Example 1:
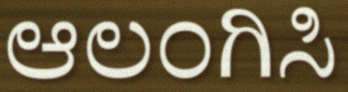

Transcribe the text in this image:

ಆಲಂಗಿಸಿ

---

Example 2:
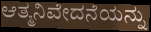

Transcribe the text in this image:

ಆತ್ಮನಿವೇದನೆಯನ್ನು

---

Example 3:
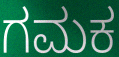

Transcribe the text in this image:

ಗಮಕ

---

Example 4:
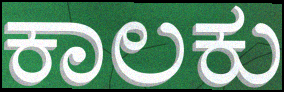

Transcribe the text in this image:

ಕಾಲಕು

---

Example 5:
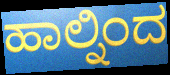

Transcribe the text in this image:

ಹಾಲ್ನಿಂದ